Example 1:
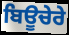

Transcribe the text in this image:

ਬਿਊਚੇਰੇ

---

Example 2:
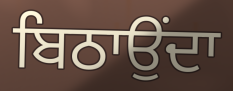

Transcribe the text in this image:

ਬਿਠਾਉਂਦਾ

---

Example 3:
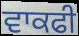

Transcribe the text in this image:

ਵਾਕਫੀ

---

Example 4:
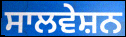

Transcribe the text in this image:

ਸਾਲਵੇਸ਼ਨ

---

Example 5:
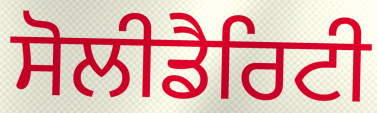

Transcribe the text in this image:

ਸੋਲੀਡੈਰਿਟੀ